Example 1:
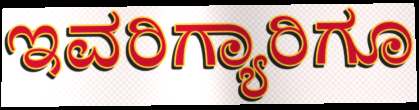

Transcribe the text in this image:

ಇವರಿಗ್ಯಾರಿಗೂ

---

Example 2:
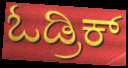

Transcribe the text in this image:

ಓಡ್ರಿಕ್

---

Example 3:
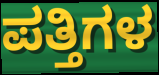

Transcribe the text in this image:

ಪತ್ತಿಗಳ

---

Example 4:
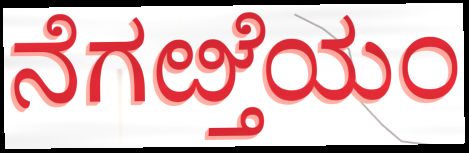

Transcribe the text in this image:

ನೆಗೞ್ತೆಯಂ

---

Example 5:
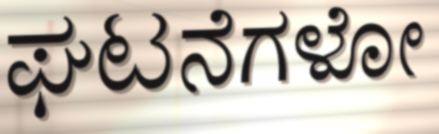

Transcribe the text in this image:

ಘಟನೆಗಳೋ